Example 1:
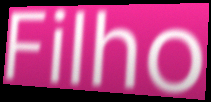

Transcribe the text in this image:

Filho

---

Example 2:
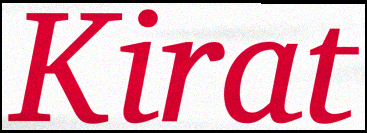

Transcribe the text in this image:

Kirat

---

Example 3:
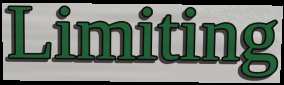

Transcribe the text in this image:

Limiting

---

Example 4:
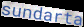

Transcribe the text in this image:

sundarta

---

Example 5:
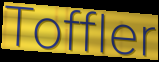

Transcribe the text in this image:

Toffler